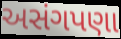
અસંગપણા